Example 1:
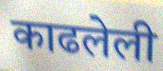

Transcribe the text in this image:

काढलेली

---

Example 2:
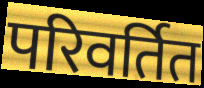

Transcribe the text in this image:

परिवर्तित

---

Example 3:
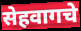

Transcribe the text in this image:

सेहवागचे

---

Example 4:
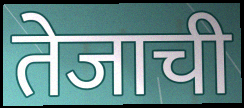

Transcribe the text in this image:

तेजाची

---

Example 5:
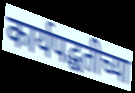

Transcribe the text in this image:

कार्यपद्धतीच्या